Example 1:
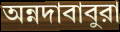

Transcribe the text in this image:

অন্নদাবাবুরা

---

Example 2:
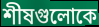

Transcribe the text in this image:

শীষগুলোকে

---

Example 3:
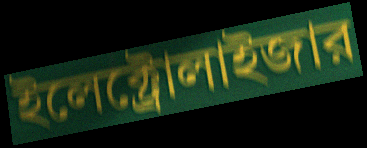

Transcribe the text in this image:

ইলেক্ট্রোলাইজার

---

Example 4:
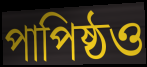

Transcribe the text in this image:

পাপিষ্ঠও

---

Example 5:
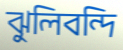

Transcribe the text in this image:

ঝুলিবন্দি